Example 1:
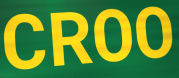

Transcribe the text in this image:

CROO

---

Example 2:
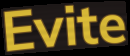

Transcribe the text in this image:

Evite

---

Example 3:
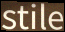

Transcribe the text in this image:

stile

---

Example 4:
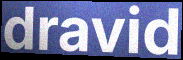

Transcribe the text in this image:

dravid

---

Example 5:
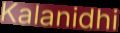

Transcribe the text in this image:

Kalanidhi